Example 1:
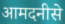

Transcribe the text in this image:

आमदनीसे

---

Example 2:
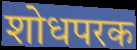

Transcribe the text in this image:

शोधपरक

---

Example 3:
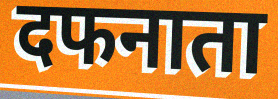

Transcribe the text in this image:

दफनाता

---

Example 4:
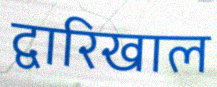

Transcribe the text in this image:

द्वारिखाल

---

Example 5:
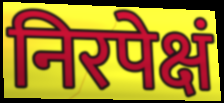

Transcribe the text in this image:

निरपेक्षं